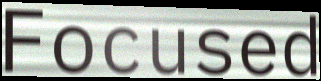
Focused